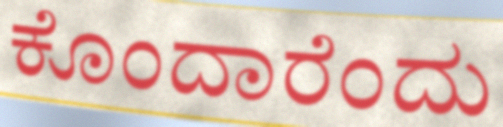
ಕೊಂದಾರೆಂದು